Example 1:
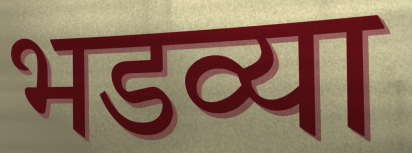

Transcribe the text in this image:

भडव्या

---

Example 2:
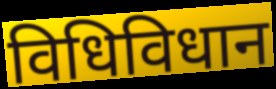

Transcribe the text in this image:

विधिविधान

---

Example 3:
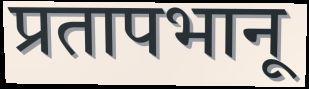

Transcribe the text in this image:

प्रतापभानू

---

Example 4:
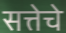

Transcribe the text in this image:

सत्तेचे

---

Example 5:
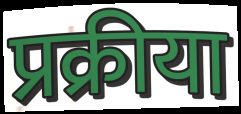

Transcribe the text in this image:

प्रक्रीया